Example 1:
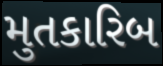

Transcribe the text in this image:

મુતકારિબ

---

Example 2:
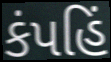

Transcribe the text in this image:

કંપહિં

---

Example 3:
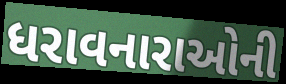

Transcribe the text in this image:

ધરાવનારાઓની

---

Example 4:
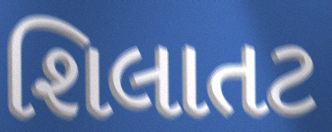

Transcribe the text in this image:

શિલાતટ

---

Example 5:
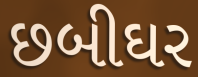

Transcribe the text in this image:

છબીઘર